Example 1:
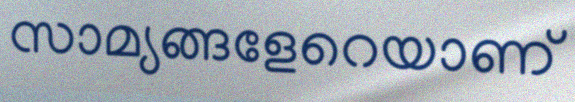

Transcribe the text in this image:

സാമ്യങ്ങളേറെയാണ്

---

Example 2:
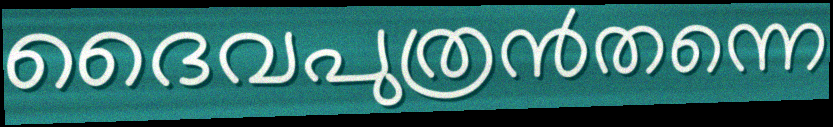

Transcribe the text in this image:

ദൈവപുത്രൻതന്നെ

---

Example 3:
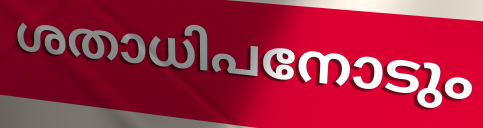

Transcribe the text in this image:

ശതാധിപനോടും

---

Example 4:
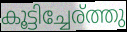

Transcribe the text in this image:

കൂട്ടിച്ചേര്ത്തു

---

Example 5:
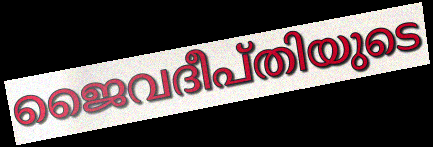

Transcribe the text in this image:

ജൈവദീപ്തിയുടെ